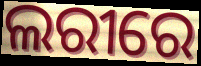
ଲରୀରେ